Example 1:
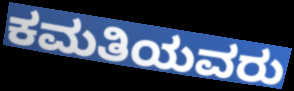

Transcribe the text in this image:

ಕಮತಿಯವರು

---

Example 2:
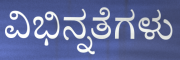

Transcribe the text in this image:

ವಿಭಿನ್ನತೆಗಳು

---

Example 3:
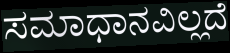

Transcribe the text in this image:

ಸಮಾಧಾನವಿಲ್ಲದೆ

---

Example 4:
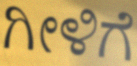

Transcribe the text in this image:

ಗೀಳಿಗೆ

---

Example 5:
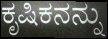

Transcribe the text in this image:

ಕೃಷಿಕನನ್ನು